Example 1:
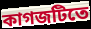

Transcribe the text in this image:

কাগজটিতে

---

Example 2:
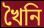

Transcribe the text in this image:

খৈনি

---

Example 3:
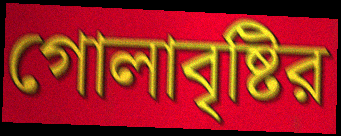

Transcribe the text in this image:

গোলাবৃষ্টির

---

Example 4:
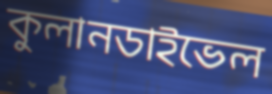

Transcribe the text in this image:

কুলানডাইভেল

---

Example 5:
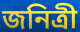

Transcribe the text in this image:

জনিত্রী